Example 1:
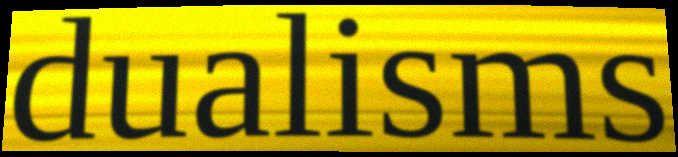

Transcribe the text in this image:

dualisms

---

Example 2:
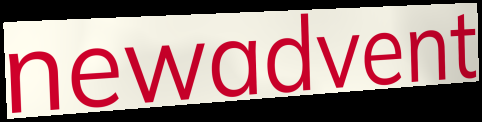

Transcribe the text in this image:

newadvent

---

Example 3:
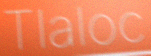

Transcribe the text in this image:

Tlaloc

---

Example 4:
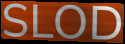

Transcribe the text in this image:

SLOD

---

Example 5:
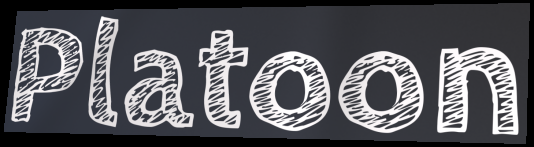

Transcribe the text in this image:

Platoon